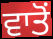
ਵਾਤੋਂ